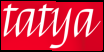
tatya